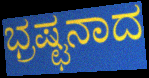
ಭ್ರಷ್ಟನಾದ